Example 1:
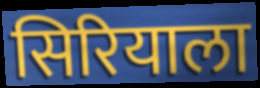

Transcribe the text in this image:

सिरियाला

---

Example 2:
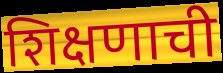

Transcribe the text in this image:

शिक्षणाची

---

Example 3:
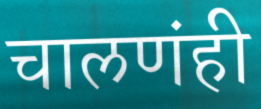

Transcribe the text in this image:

चालणंही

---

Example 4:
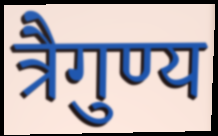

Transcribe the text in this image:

त्रैगुण्य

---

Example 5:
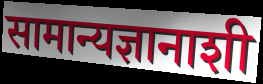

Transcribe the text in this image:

सामान्यज्ञानाशी